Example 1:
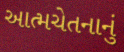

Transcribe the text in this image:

આત્મચેતનાનું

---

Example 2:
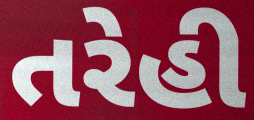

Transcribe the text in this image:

તરેહી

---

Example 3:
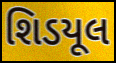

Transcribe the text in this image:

શિડયૂલ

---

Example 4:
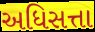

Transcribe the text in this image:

અધિસત્તા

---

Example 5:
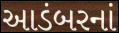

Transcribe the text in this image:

આડંબરનાં